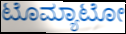
ಟೊಮ್ಯಾಟೋ